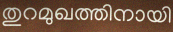
തുറമുഖത്തിനായി